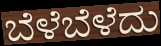
ಬೆಳೆಬೆಳೆದು